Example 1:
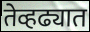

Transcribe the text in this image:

तेव्हढ्यात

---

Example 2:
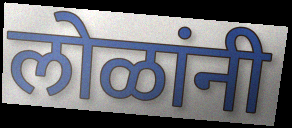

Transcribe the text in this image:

लोळांनी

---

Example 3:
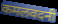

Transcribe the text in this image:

कमलवदनी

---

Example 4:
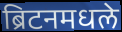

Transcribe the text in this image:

ब्रिटनमधले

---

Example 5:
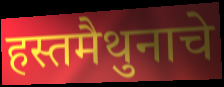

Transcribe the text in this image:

हस्तमैथुनाचे